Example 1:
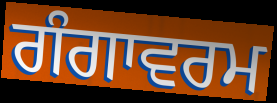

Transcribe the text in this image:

ਗੰਗਾਵਰਮ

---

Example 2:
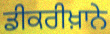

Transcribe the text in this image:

ਡੀਕਰੀਖ਼ਾਨੇ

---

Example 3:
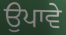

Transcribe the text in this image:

ਉਪਾਵੇ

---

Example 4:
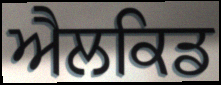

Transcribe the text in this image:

ਐਲਕਿਡ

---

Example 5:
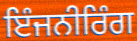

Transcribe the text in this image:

ਇੰਜਨੀਰਿੰਗ